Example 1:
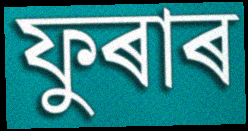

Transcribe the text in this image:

ফুৰাৰ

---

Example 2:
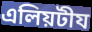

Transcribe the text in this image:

এলিয়টীয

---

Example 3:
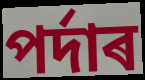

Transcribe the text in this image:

পৰ্দাৰ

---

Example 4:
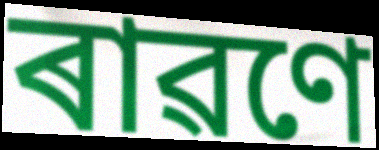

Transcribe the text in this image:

ৰাৱণে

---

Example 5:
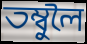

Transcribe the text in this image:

তম্বুলৈ